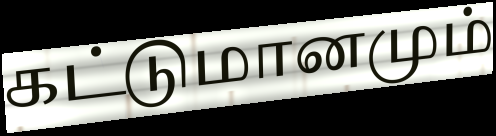
கட்டுமானமும்